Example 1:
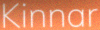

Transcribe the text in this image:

Kinnar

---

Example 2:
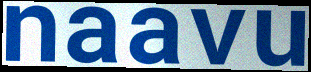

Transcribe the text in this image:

naavu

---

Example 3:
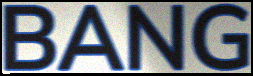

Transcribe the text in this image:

BANG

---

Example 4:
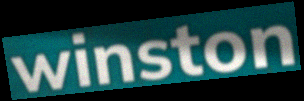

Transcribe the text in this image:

winston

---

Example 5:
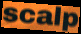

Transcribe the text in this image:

scalp